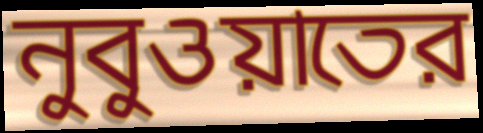
নুবুওয়াতের